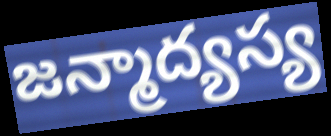
జన్మాద్యస్య